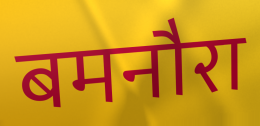
बमनौरा